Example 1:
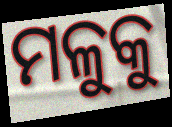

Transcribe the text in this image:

ମଳୁକୁ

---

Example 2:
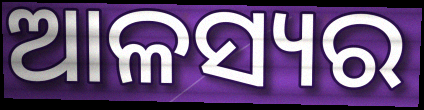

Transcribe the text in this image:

ଆଳସ୍ୟର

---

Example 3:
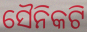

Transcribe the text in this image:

ସୈନିକଟି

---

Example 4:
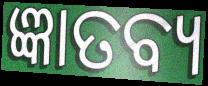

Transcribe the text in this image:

ଜ୍ଞାତବ୍ୟ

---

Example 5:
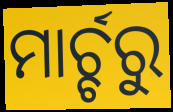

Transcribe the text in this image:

ମାର୍ଚ୍ଚରୁ